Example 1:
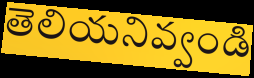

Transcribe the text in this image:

తెలియనివ్వండి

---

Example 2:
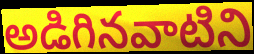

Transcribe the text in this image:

అడిగినవాటిని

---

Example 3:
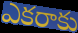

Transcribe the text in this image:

ఎకరాకు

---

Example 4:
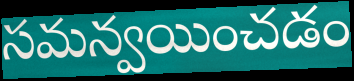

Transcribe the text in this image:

సమన్వయించడం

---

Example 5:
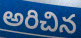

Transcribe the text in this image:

అరిచిన